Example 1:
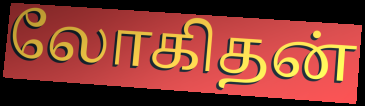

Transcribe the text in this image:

லோகிதன்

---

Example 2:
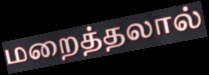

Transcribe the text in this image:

மறைத்தலால்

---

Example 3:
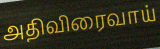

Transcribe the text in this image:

அதிவிரைவாய்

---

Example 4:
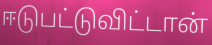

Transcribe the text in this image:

ஈடுபட்டுவிட்டான்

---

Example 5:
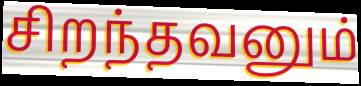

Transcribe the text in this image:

சிறந்தவனும்